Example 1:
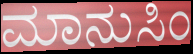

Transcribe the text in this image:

ಮಾನುಸಿಂ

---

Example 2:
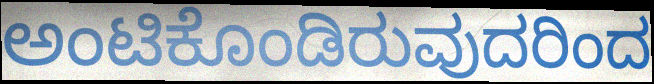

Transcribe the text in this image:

ಅಂಟಿಕೊಂಡಿರುವುದರಿಂದ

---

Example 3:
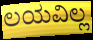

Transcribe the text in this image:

ಲಯವಿಲ್ಲ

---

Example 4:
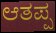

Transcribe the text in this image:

ಆತಪ್ಪ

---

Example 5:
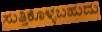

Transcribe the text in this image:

ಸುತ್ತಿಕೊಳ್ಳಬಹುದು